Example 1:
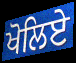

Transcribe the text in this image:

ਖੋਲਿਏ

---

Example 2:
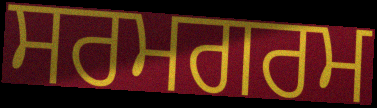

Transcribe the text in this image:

ਸਰਮਗਰਮ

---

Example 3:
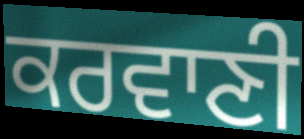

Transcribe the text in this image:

ਕਰਵਾਣੀ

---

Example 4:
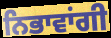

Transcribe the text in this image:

ਨਿਭਾਵਾਂਗੀ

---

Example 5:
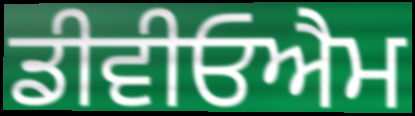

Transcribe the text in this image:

ਡੀਵੀਓਐਮ